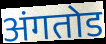
अंगतोड